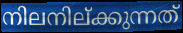
നിലനില്ക്കുന്നത്